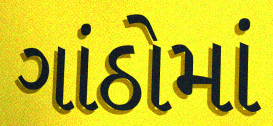
ગાંઠોમાં